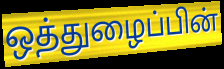
ஒத்துழைப்பின்